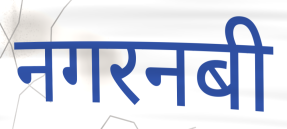
नगरनबी